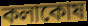
কলাকোষ